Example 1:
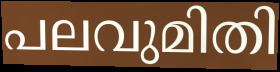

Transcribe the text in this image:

പലവുമിതി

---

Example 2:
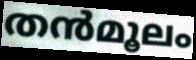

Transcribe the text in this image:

തൻമൂലം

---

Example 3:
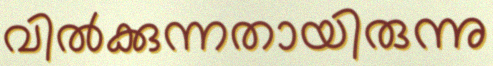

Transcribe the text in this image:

വിൽക്കുന്നതായിരുന്നു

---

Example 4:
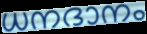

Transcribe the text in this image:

ധനദാനം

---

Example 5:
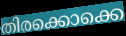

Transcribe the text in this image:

തിരക്കൊക്കെ